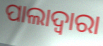
ପାଲାଦ୍ୱାରା